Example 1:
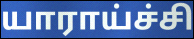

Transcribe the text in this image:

யாராய்ச்சி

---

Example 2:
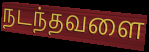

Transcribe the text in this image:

நடந்தவளை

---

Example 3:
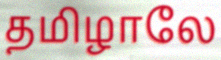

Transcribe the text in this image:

தமிழாலே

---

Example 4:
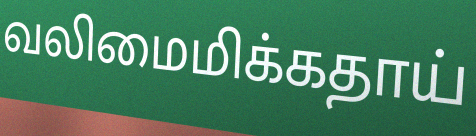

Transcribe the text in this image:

வலிமைமிக்கதாய்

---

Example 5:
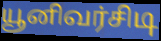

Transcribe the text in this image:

யூனிவர்சிடி